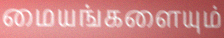
மையங்களையும்